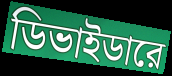
ডিভাইডারে